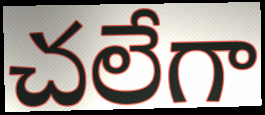
చలేగా